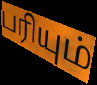
பரியும்